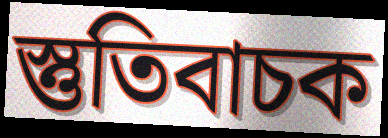
স্তুতিবাচক